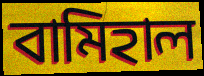
বামিহাল